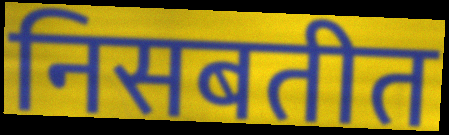
निसबतीत